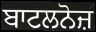
ਬਾਟਲਨੋਜ਼